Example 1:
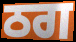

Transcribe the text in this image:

ਠਗ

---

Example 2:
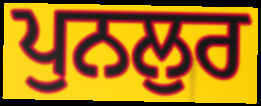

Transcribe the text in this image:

ਪੁਨਲੁਰ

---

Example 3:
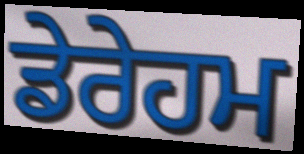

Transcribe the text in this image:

ਡੇਰੇਹਮ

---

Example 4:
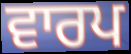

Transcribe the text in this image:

ਵਾਰਪ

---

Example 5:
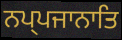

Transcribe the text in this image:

ਨਪ੍ਪਜਾਨਾਤਿ